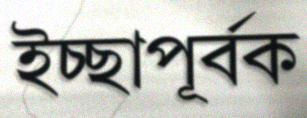
ইচ্ছাপূর্বক